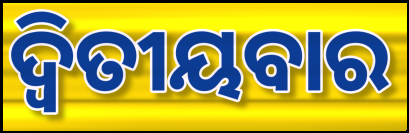
ଦ୍ୱିତୀୟବାର